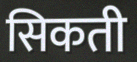
सिकती